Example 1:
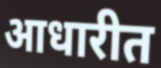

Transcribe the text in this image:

आधारीत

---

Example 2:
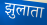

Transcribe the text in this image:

झुलाता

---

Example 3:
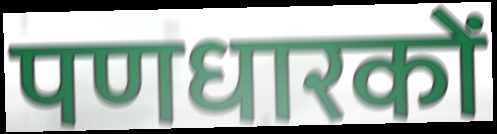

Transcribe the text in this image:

पणधारकों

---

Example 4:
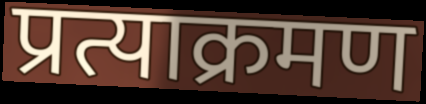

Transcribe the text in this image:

प्रत्याक्रमण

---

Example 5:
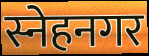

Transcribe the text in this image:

स्नेहनगर